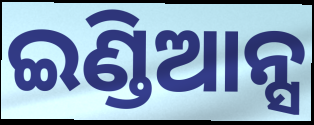
ଇଣ୍ଡିଆନ୍ସ